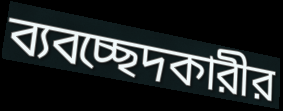
ব্যবচ্ছেদকারীর